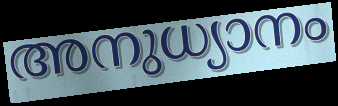
അനുധ്യാനം